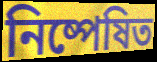
নিষ্পেষিত